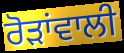
ਰੋੜਾਂਵਾਲੀ